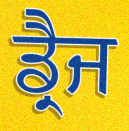
ਡ੍ਰੈਜ